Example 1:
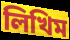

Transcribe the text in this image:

লিখিম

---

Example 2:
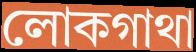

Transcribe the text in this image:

লোকগাথা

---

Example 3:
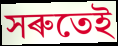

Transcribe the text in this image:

সৰুতেই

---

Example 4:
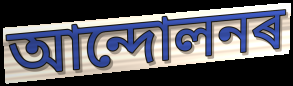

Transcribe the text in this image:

আন্দোলনৰ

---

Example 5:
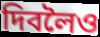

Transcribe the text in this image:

দিবলৈও